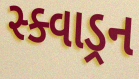
સ્ક્વાડ્રન